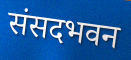
संसदभवन